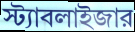
স্ট্যাবলাইজার